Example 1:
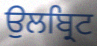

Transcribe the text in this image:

ਉਲਬ੍ਰਿਟ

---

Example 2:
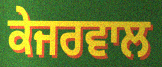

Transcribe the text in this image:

ਕੇਜਰਵਾਲ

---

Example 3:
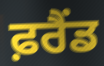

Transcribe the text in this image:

ਫ਼ਰੈਂਡ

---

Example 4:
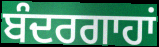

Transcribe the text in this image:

ਬੰਦਰਗਾਹਾਂ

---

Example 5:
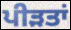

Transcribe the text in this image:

ਪੀੜਤਾਂ